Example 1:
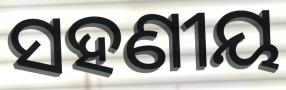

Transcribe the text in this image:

ସହଣୀୟ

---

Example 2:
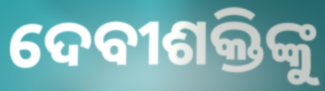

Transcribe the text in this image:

ଦେବୀଶକ୍ତିଙ୍କୁ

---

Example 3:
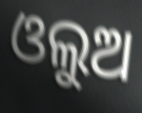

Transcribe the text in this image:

ଓଲୁଅ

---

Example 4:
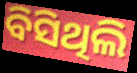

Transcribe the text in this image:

ବିସିଥିଲି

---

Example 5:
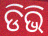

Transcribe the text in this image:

ଡିଭି